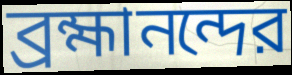
ব্রহ্মানন্দের